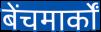
बेंचमार्कों